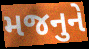
મજનુને